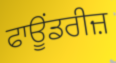
ਫਾਊਂਡਰੀਜ਼